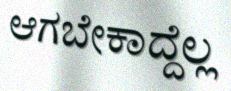
ಆಗಬೇಕಾದ್ದೆಲ್ಲ